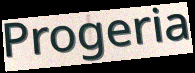
Progeria